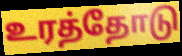
உரத்தோடு